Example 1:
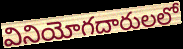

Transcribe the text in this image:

వినియోగదారులలో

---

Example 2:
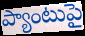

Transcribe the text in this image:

ప్యాంటుపై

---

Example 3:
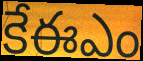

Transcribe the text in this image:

కేఈఎం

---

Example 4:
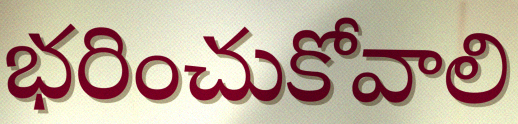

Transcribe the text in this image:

భరించుకోవాలి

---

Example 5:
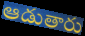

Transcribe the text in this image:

ఆడుతారు